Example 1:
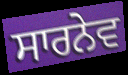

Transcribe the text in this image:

ਸਾਰਨੇਵ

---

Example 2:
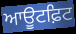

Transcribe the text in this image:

ਆਊਟਫ਼ਿਟ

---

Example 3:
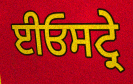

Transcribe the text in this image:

ਈਓਸਟ੍ਰੇ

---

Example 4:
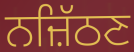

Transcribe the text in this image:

ਨਜ਼ਿੱਠਣ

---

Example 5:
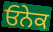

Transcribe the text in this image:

ਓਨੇਕ